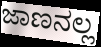
ಜಾಣನಲ್ಲ